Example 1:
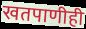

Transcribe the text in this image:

खतपाणीही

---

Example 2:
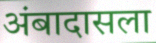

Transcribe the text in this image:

अंबादासला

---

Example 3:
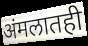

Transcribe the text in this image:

अंमलातही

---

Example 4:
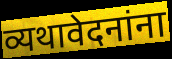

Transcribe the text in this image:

व्यथावेदनांना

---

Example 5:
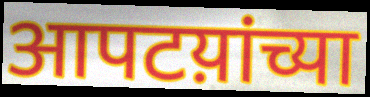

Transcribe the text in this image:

आपटय़ांच्या